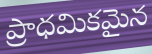
ప్రాధమికమైన